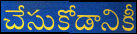
చేసుకోడానికీ